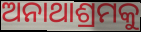
ଅନାଥାଶ୍ରମକୁ